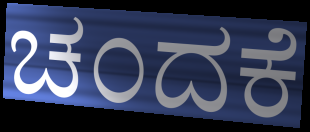
ಚಂದಕೆ